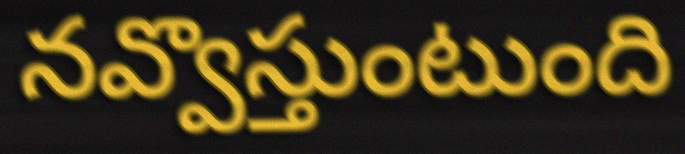
నవ్వొస్తుంటుంది